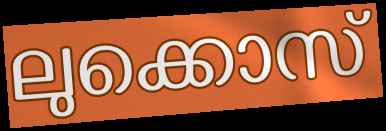
ലുക്കൊസ്